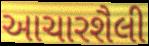
આચારશૈલી